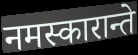
नमस्कारान्ते